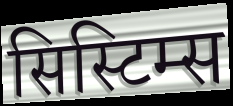
सिस्टिम्स